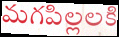
మగపిల్లలకి